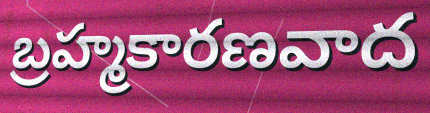
బ్రహ్మకారణవాద